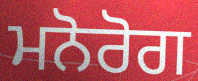
ਮਨੋਰੋਗ